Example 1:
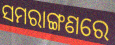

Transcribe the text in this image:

ସମରାଙ୍ଗଣରେ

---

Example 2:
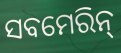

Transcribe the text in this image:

ସବମେରିନ୍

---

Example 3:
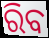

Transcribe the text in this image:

ରିବ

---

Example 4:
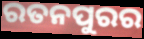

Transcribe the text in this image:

ରତନପୁରର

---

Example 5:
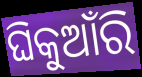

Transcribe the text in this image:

ଘିକୁଆଁରି